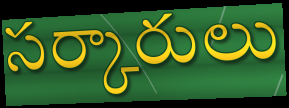
సర్కారులు